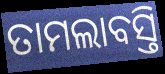
ତାମଲାବସ୍ତି